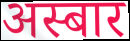
अस्बार